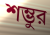
শম্ভুর